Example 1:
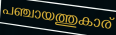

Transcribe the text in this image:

പഞ്ചായത്തുകാര്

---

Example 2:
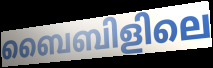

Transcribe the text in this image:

ബൈബിളിലെ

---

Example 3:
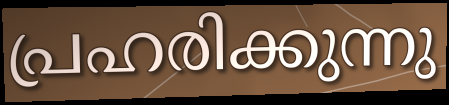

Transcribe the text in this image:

പ്രഹരിക്കുന്നു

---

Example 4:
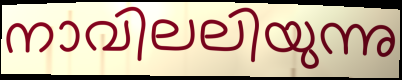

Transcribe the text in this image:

നാവിലലിയുന്നു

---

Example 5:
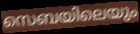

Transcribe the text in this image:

സെബയിലെയും